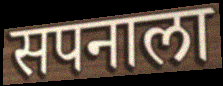
सपनाला